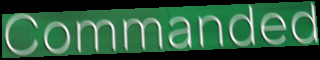
Commanded